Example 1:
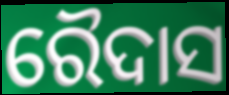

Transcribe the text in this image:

ରୈଦାସ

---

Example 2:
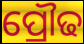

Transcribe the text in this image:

ପ୍ରୌଢ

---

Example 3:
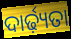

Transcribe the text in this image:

ଦାର୍ଢ଼୍ୟତା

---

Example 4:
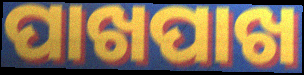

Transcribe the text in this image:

ପାଖପାଖ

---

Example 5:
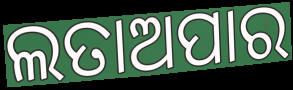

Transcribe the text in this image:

ଲତାଅପାର